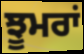
ਝੂਮਰਾਂ